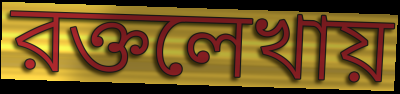
রক্তলেখায়